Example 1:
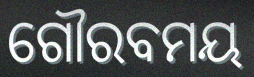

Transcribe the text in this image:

ଗୌରବମୟ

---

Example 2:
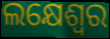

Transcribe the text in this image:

ଲକ୍ଷେଶ୍ୱର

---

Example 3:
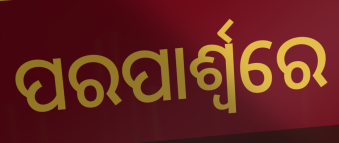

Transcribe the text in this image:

ପରପାର୍ଶ୍ୱରେ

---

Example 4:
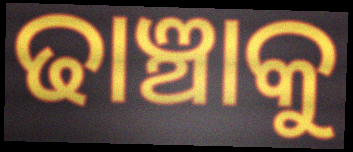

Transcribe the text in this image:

ଢାଞ୍ଚାକୁ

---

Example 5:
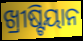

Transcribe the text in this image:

ଖ୍ରୀଷ୍ଟିୟାନ